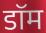
डॉम